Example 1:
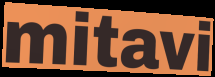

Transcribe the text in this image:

mitavi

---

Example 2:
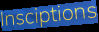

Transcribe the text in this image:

Insciptions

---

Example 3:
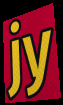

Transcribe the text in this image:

jy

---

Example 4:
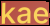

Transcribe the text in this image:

kae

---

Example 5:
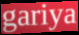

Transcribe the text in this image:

gariya